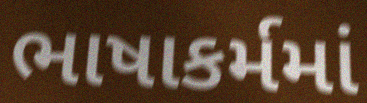
ભાષાકર્મમાં